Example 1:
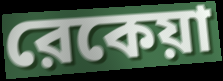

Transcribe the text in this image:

রেকেয়া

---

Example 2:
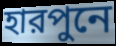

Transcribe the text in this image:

হারপুনে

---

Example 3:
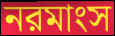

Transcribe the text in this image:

নরমাংস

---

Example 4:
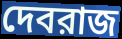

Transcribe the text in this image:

দেবরাজ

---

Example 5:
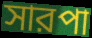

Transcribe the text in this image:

সারপা